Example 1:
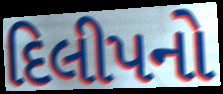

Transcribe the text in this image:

દિલીપનો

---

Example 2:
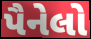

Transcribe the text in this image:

પૈનેલો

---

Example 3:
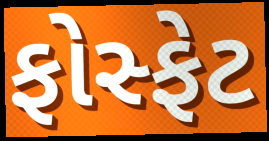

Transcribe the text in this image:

ફોસ્ફેટ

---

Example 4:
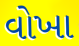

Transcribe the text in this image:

વોખા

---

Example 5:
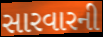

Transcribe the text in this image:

સારવારની